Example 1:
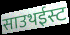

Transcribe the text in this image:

साउथईस्ट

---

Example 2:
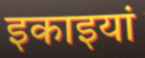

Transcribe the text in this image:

इकाइयां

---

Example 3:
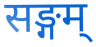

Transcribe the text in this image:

सङ्गम्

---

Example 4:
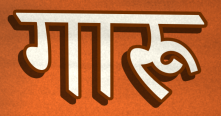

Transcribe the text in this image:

गारू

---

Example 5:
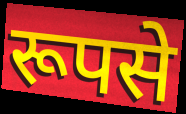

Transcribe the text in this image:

रूपसे